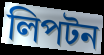
লিপটন